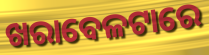
ଖରାବେଳଟାରେ